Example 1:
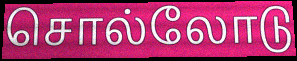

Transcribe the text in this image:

சொல்லோடு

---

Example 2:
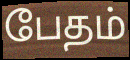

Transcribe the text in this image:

பேதம்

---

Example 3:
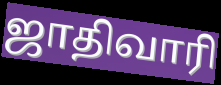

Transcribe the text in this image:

ஜாதிவாரி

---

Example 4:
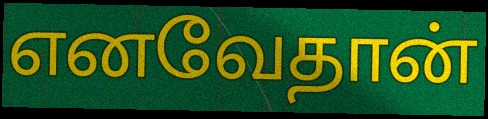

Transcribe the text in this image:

எனவேதான்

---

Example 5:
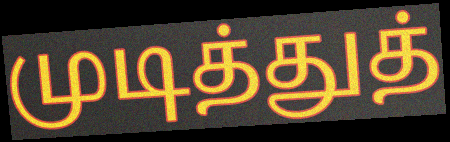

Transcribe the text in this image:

முடித்துத்